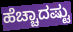
ಹೆಚ್ಚಾದಷ್ಟು